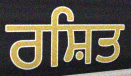
ਰਸ਼ਿਤ